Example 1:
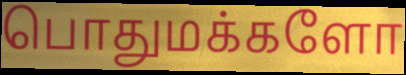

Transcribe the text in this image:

பொதுமக்களோ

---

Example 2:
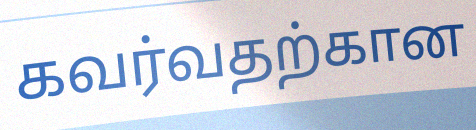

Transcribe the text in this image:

கவர்வதற்கான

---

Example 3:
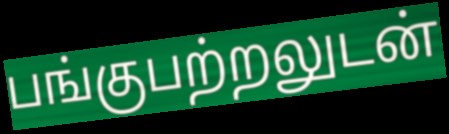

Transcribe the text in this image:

பங்குபற்றலுடன்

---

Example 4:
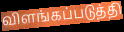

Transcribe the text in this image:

விளங்கப்படுத்தி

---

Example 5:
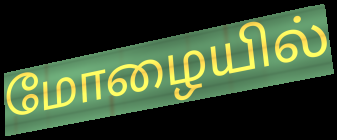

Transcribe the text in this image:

மோழையில்